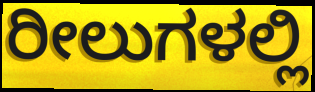
ರೀಲುಗಳಲ್ಲಿ